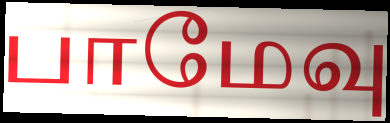
பாமேவு